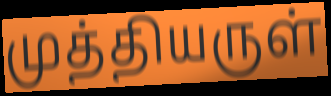
முத்தியருள்